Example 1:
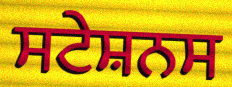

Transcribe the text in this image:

ਸਟੇਸ਼ਨਸ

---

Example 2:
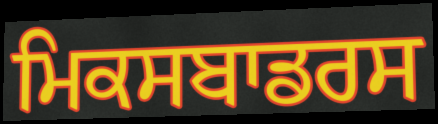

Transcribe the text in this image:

ਮਿਕਸਬਾਡਰਸ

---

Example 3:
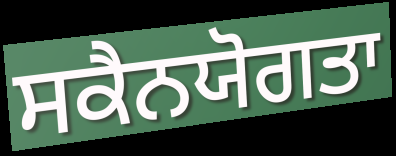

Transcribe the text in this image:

ਸਕੈਨਯੋਗਤਾ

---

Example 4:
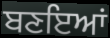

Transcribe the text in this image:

ਬਣਇਆਂ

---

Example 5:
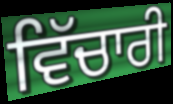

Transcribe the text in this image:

ਵਿੱਚਾਰੀ